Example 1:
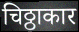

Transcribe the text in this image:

चिठ्ठाकार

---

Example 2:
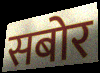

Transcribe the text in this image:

सबोर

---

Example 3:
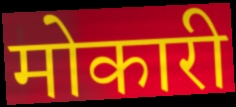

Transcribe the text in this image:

मोकारी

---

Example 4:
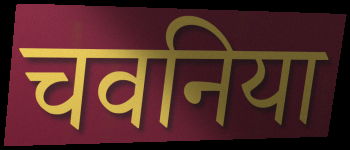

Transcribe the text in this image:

चवनिया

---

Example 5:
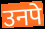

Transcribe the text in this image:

उनपे